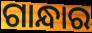
ଗାନ୍ଧାର